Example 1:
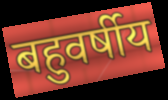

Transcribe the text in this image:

बहुवर्षीय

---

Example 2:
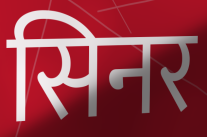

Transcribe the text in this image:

सिनर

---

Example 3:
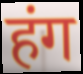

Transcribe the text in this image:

हंग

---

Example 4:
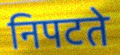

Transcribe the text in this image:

निपटते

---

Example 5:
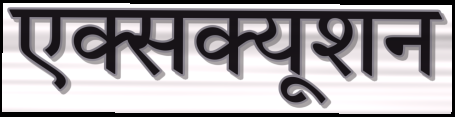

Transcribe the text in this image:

एक्सक्यूशन